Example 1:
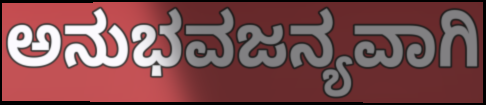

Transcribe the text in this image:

ಅನುಭವಜನ್ಯವಾಗಿ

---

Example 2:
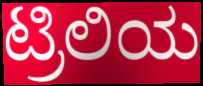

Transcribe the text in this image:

ಟ್ರಿಲಿಯ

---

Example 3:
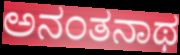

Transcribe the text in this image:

ಅನಂತನಾಥ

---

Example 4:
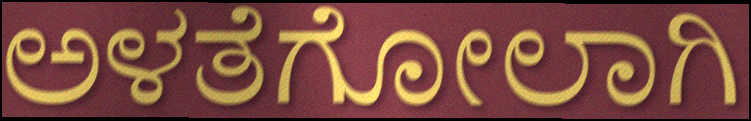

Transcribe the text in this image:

ಅಳತೆಗೋಲಾಗಿ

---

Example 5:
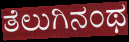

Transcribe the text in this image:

ತೆಲುಗಿನಂಥ